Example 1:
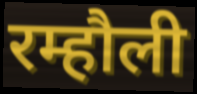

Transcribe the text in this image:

रम्हौली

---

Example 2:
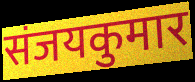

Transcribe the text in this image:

संजयकुमार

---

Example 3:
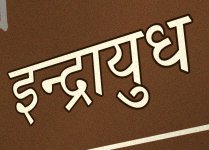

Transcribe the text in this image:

इन्द्रायुध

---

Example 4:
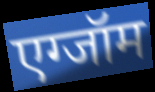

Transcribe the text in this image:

एग्जॉम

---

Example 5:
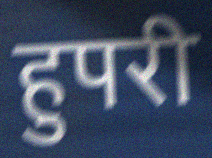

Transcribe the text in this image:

हुपरी